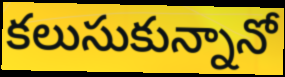
కలుసుకున్నానో